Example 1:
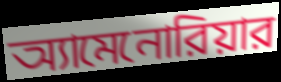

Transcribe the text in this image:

অ্যামেনোরিয়ার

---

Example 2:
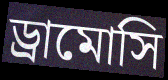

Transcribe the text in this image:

ড্রামোসি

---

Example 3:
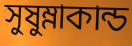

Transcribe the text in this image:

সুষুম্নাকান্ড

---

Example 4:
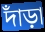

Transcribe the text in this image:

দাঁড়া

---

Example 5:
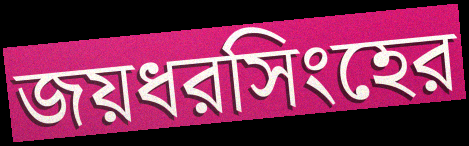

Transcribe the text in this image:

জয়ধরসিংহের